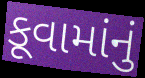
કૂવામાંનું